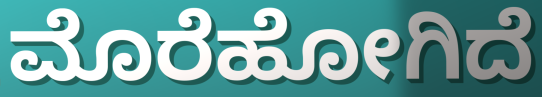
ಮೊರೆಹೋಗಿದೆ